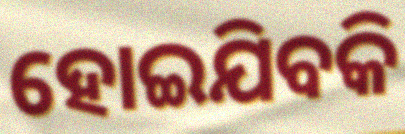
ହୋଇଯିବକି